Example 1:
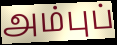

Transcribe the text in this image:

அம்புப்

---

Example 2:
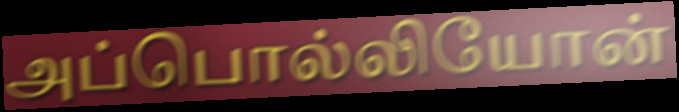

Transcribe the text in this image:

அப்பொல்லியோன்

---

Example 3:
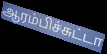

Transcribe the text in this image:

ஆரம்பிச்சுட்டா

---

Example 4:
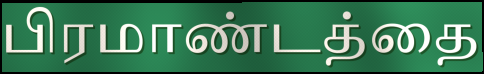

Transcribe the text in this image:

பிரமாண்டத்தை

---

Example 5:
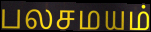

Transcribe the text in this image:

பலசமயம்